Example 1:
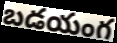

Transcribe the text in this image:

బడయంగ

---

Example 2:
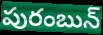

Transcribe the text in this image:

పురంబున్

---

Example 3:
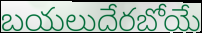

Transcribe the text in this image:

బయలుదేరబోయే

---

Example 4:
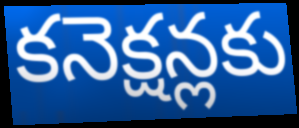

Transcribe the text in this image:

కనెక్షన్లకు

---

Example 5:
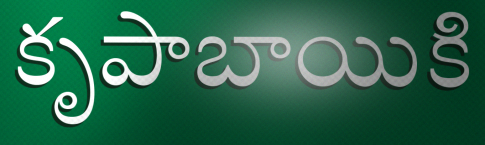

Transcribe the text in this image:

కృపాబాయికి